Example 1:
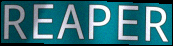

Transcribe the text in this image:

REAPER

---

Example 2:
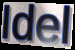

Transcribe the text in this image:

Idel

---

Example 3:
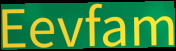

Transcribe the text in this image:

Eevfam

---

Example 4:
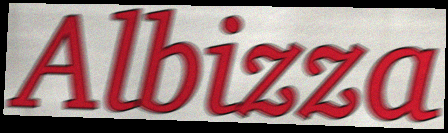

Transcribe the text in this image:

Albizza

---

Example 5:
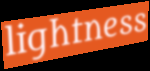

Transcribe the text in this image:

lightness